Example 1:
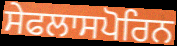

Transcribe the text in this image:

ਸੇਫਲਾਸਪੋਰਿਨ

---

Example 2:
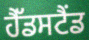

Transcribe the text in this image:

ਹੈੱਡਸਟੈਂਡ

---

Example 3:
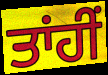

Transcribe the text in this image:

ਤਾਂਹੀਂ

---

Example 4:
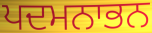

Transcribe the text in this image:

ਪਦਮਨਾਭਨ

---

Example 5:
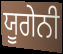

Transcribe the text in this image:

ਯੂਗੇਨੀ